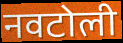
नवटोली